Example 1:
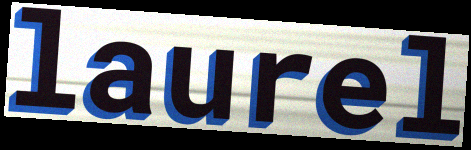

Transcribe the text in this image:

laurel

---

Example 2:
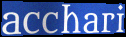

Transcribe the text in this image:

acchari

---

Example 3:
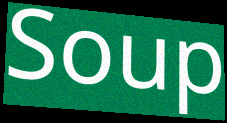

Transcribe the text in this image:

Soup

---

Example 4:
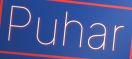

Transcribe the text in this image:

Puhar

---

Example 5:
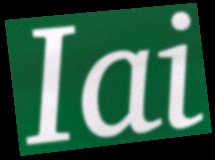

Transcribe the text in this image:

Iai